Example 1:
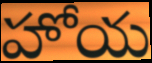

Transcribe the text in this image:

హోయ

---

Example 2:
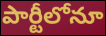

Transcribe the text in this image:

పార్టీలోనూ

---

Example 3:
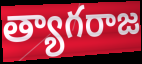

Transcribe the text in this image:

త్యాగరాజ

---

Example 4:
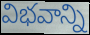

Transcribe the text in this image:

విభవాన్ని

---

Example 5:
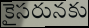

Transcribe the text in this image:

కైసరునకు